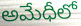
అమేధీలో